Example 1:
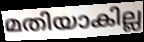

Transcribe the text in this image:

മതിയാകില്ല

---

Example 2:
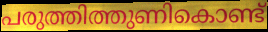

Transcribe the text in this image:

പരുത്തിത്തുണികൊണ്ട്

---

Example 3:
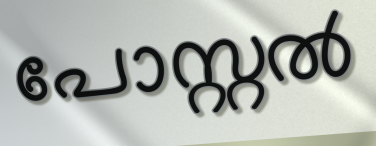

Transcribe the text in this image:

പോസ്റ്റൽ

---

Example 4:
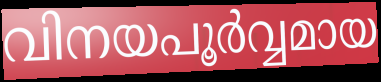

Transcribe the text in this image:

വിനയപൂർവ്വമായ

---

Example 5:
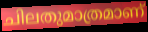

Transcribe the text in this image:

ചിലതുമാത്രമാണ്